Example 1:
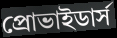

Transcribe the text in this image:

প্রোভাইডার্স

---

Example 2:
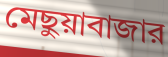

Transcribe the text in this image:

মেছুয়াবাজার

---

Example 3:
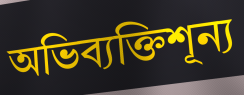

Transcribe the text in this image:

অভিব্যক্তিশূন্য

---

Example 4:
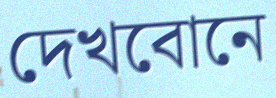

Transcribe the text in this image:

দেখবোনে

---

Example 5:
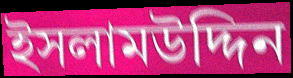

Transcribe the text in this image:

ইসলামউদ্দিন